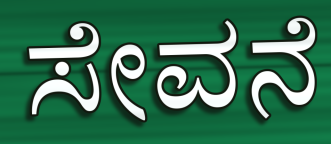
ಸೇವನೆ